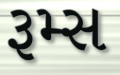
રૂમ્સ